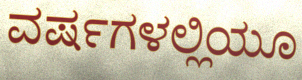
ವರ್ಷಗಳಲ್ಲಿಯೂ